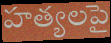
హత్యలపై